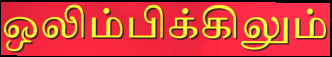
ஒலிம்பிக்கிலும்